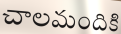
చాలమందికి